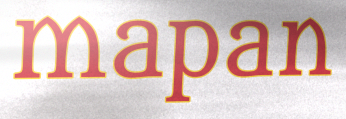
mapan